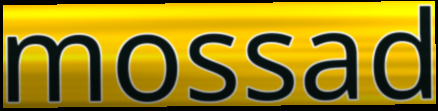
mossad